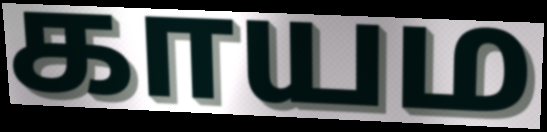
காயம